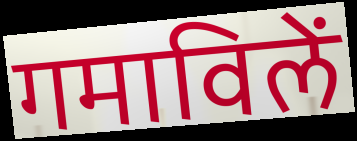
गमाविलें